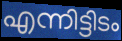
എന്നിട്ടിടം